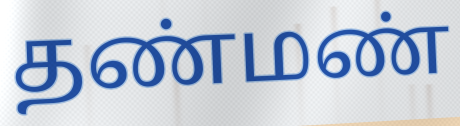
தண்மண்